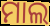
ମାଲ